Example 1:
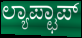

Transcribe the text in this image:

ಲ್ಯಾಪ್ಟಾಪ್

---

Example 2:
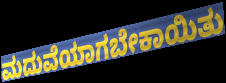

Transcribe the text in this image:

ಮದುವೆಯಾಗಬೇಕಾಯಿತು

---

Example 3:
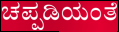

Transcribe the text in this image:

ಚಪ್ಪಡಿಯಂತೆ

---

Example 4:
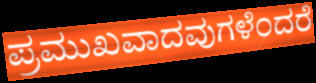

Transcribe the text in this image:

ಪ್ರಮುಖವಾದವುಗಳೆಂದರೆ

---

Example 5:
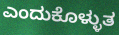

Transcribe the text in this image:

ಎಂದುಕೊಳ್ಳುತ